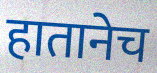
हातानेच